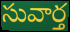
సువార్త